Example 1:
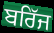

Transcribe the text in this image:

ਬਰਿੱਜ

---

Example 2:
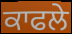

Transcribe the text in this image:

ਕਾਫਲੇ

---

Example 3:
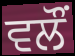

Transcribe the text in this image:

ਵਲੌੰ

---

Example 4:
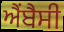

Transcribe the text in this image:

ਐਂਬੈਸੀ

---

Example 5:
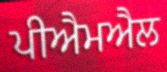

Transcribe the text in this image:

ਪੀਐਮਐਲ